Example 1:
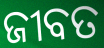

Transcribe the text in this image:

ଜୀବତ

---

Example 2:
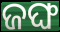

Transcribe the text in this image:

ଜଙ୍ଘ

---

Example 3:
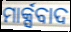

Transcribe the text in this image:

ମାର୍କ୍ସବାଦ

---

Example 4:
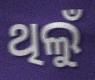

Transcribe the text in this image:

ଥିଲୁଁ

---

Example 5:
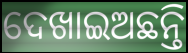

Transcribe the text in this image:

ଦେଖାଇଅଛନ୍ତି